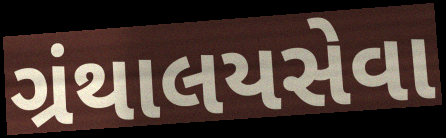
ગ્રંથાલયસેવા